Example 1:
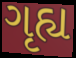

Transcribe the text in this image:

ગૃહ્ય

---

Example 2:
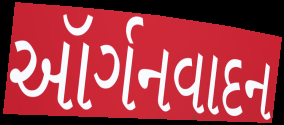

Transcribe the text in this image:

ઑર્ગનવાદન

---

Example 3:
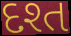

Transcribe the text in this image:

દશ્ત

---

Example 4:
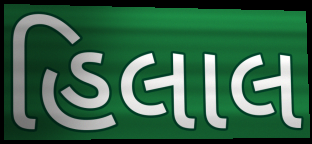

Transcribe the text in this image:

હિલાલ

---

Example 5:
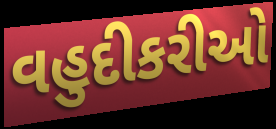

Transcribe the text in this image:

વહુદીકરીઓ